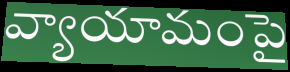
వ్యాయామంపై